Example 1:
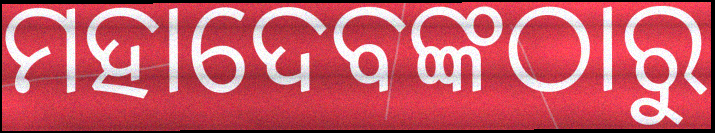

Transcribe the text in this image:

ମହାଦେବଙ୍କଠାରୁ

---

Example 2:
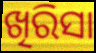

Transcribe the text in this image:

ଖିରିସା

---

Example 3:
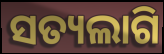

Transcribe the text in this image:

ସତ୍ୟଲାଗି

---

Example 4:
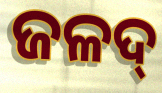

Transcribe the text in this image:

ଜଳଦ୍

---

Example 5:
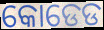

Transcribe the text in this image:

କୋଡେଡ